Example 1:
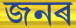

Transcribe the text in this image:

জনৰ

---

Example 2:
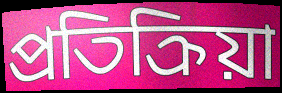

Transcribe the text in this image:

প্ৰতিক্ৰিয়া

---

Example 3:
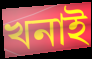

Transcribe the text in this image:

খনাই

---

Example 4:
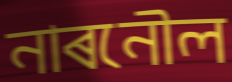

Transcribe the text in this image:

নাৰনৌল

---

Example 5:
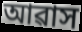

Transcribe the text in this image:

আৱাস